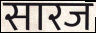
सारज